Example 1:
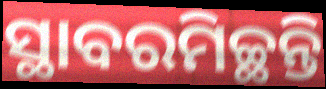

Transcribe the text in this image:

ସ୍ଥାବରମିଚ୍ଛନ୍ତି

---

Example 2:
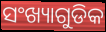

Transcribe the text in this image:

ସଂଖ୍ୟାଗୁଡିକ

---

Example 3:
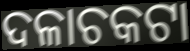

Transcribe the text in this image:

ଦଳାଚକଟା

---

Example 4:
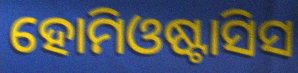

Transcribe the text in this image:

ହୋମିଓଷ୍ଟାସିସ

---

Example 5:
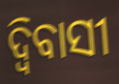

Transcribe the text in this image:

ଦ୍ବିବାସୀ